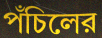
পঁচিলের